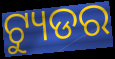
ଟ୍ୟୁଡର